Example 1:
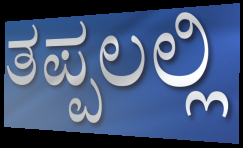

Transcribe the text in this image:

ತಪ್ಪಲಲ್ಲಿ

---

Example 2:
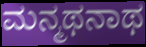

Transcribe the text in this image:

ಮನ್ಮಥನಾಥ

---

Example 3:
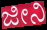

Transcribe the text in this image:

ಜೀನಿ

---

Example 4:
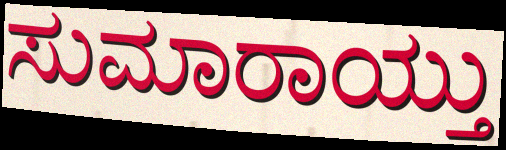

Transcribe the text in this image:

ಸುಮಾರಾಯ್ತು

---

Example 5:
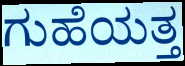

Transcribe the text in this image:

ಗುಹೆಯತ್ತ